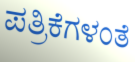
ಪತ್ರಿಕೆಗಳಂತೆ